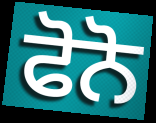
ਫੋਨੋ